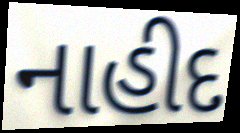
નાહીદ